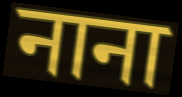
नाना